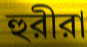
হুরীরা